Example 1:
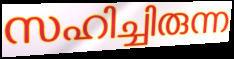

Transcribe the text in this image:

സഹിച്ചിരുന്ന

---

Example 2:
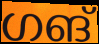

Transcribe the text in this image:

ഗങ്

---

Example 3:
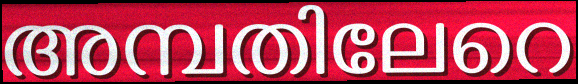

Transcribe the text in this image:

അമ്പതിലേറെ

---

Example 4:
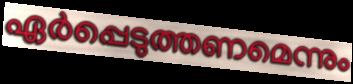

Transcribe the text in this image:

ഏർപ്പെടുത്തണമെന്നും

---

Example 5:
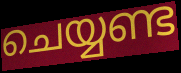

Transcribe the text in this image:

ചെയ്യണ്ട